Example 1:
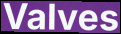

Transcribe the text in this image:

Valves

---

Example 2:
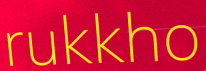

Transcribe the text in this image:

rukkho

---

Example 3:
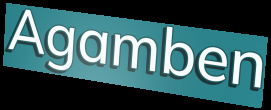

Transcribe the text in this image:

Agamben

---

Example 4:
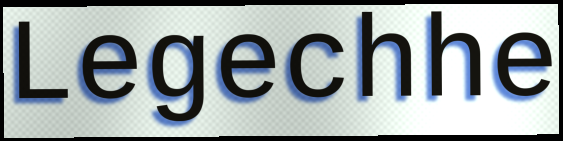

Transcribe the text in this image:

Legechhe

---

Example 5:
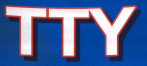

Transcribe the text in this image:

TTY